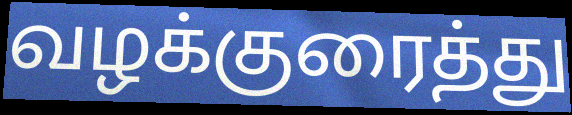
வழக்குரைத்து